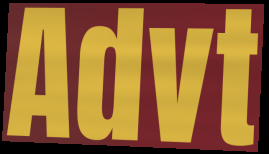
Advt